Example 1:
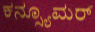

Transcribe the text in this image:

ಕನ್ಸ್ಯೂಮರ್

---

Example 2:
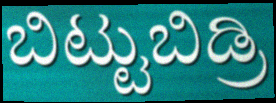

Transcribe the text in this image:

ಬಿಟ್ಟುಬಿಡ್ರಿ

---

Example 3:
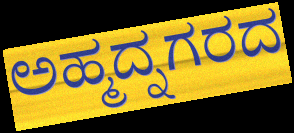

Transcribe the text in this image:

ಅಹ್ಮದ್ನಗರದ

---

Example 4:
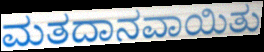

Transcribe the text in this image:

ಮತದಾನವಾಯಿತು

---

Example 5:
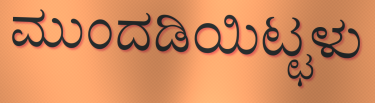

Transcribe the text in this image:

ಮುಂದಡಿಯಿಟ್ಟಳು